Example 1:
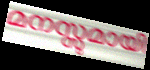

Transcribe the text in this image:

മനസ്സുമായി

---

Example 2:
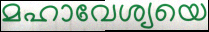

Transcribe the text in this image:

മഹാവേശ്യയെ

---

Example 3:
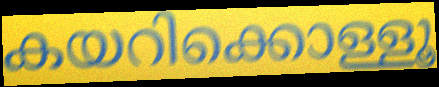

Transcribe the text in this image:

കയറിക്കൊള്ളൂ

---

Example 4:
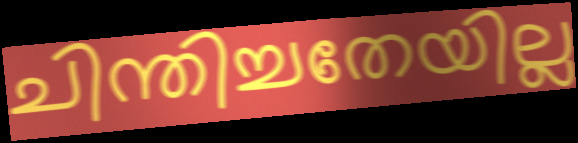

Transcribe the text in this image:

ചിന്തിച്ചതേയില്ല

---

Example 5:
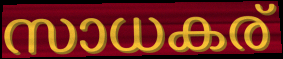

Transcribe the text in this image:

സാധകര്